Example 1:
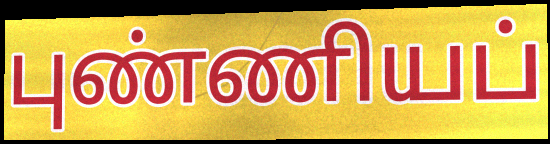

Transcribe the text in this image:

புண்ணியப்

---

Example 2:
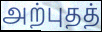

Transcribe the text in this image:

அற்புதத்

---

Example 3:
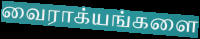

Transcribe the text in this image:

வைராக்யங்களை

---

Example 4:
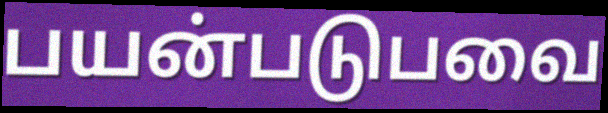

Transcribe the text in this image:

பயன்படுபவை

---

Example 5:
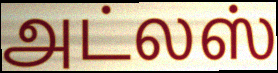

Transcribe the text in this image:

அட்லஸ்